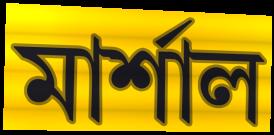
মাৰ্শাল